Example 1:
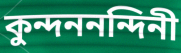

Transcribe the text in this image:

কুন্দননন্দিনী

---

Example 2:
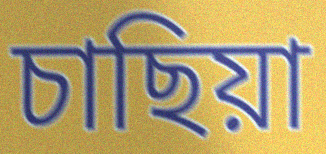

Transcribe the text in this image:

চাছিয়া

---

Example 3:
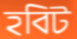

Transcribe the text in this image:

হবিট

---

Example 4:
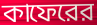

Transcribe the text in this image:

কাফেরের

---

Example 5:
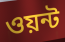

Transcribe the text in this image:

ওয়ন্ট